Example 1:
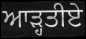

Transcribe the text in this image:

ਆੜ੍ਹਤੀਏ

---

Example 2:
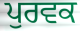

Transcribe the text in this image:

ਪੁਰਵਕ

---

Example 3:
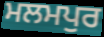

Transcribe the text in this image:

ਮਲਮਪੁਰ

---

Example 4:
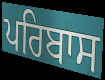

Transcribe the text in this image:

ਪਰਿਬਾਸ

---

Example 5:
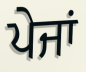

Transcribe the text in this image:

ਪੇਜਾਂ